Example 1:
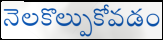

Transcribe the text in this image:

నెలకొల్పుకోవడం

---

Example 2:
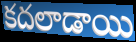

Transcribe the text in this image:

కదలాడాయి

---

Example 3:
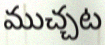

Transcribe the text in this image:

ముచ్చట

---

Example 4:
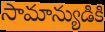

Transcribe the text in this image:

సామాన్యుడికి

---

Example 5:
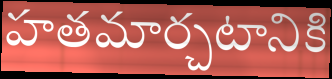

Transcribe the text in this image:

హతమార్చటానికి